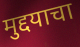
मुद्दयाचा